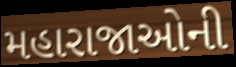
મહારાજાઓની